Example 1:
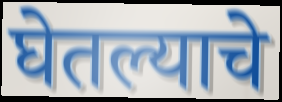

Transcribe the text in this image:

घेतल्याचे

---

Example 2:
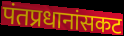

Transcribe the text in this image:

पंतप्रधानांसकट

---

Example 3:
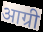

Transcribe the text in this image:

आग्री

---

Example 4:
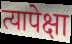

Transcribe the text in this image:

त्यापेक्षा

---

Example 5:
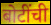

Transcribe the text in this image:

बोटींची